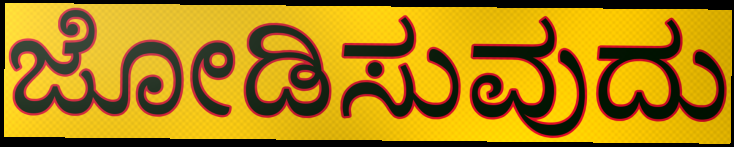
ಜೋಡಿಸುವುದು